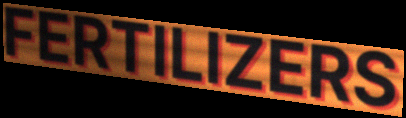
FERTILIZERS